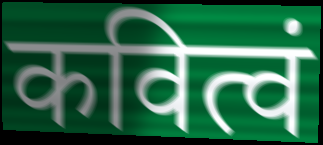
कवित्वं